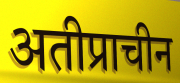
अतीप्राचीन